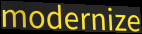
modernize